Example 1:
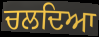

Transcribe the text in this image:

ਚਲਦਿਆ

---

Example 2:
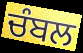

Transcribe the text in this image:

ਚੰਬਲ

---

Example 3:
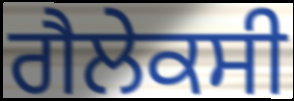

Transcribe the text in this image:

ਗੈਲੇਕਸੀ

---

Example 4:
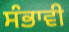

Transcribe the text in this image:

ਸੰਭਾਵੀ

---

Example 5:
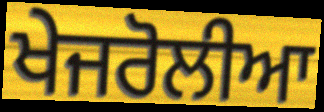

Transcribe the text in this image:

ਖੇਜਰੋਲੀਆ